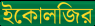
ইকোলজির